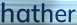
hather